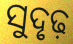
ସୁଦୃଢ଼